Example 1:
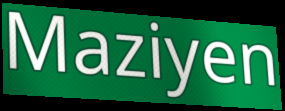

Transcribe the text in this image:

Maziyen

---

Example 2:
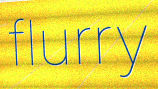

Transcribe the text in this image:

flurry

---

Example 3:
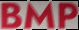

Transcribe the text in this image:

BMP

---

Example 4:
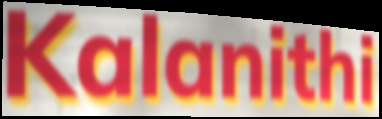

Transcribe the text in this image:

Kalanithi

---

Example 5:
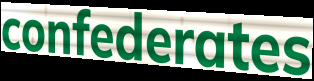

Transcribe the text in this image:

confederates